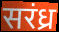
सरंध्र